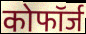
कोफॉर्ज